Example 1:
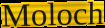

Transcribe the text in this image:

Moloch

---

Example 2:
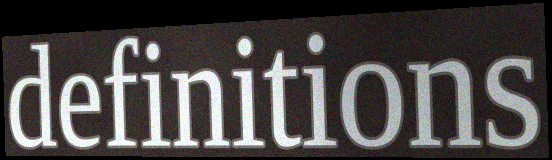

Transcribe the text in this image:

definitions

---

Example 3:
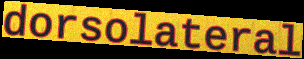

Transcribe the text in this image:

dorsolateral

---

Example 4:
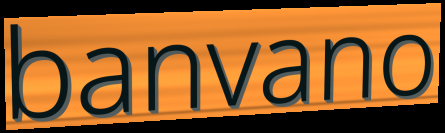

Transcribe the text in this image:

banvano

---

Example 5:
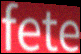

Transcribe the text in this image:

fete